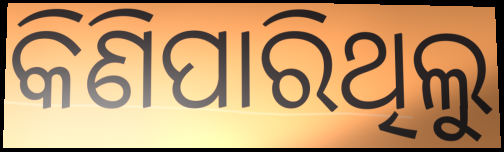
କିଣିପାରିଥିଲୁ